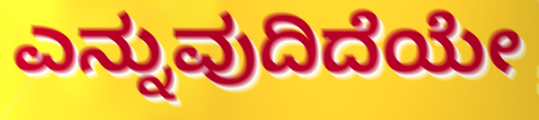
ಎನ್ನುವುದಿದೆಯೇ